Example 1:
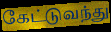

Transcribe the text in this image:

கேட்டுவந்து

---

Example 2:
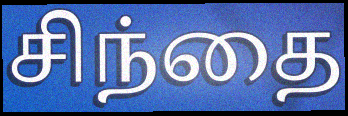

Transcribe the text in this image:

சிந்தை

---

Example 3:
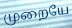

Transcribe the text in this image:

முறையே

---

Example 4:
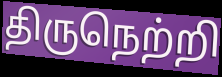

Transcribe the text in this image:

திருநெற்றி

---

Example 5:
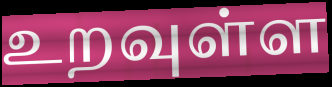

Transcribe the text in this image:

உறவுள்ள